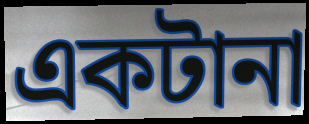
একটানা